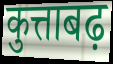
कुत्ताबढ़